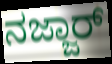
ನಜ್ಜಾರ್